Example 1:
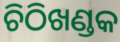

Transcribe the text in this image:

ଚିଠିଖଣ୍ଡକ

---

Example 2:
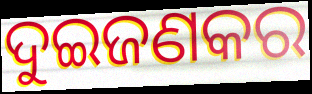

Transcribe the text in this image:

ଦୁଇଜଣକର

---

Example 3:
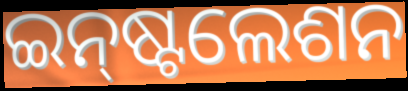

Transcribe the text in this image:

ଇନ୍‌ଷ୍ଟଲେଶନ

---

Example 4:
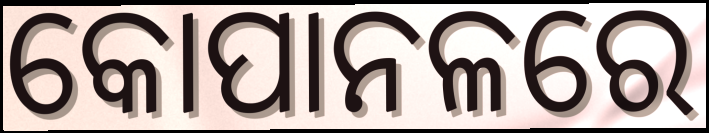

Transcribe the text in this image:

କୋପାନଳରେ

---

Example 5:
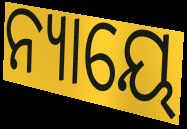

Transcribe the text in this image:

ନ୍ୟାୟେ